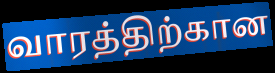
வாரத்திற்கான